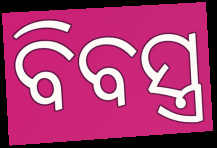
ବିବସ୍ତ୍ର